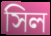
সিল